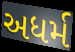
અધર્મ